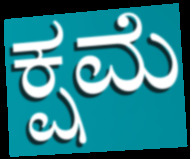
ಕ್ಷಮೆ